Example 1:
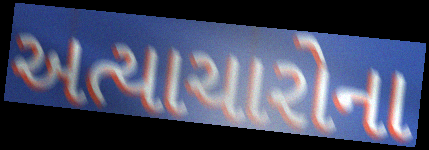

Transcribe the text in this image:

અત્યાચારોના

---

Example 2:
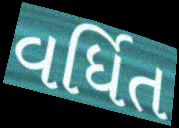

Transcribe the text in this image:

વર્ધિત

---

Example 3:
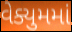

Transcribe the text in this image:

વેક્યુમમાં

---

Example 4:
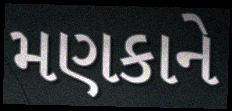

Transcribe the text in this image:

મણકાને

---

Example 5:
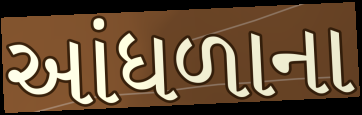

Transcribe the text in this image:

આંધળાના